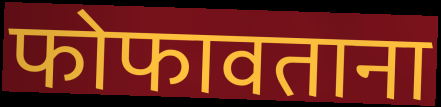
फोफावताना